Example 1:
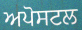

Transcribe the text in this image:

ਅਪੋਸਟਲ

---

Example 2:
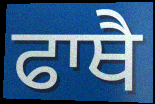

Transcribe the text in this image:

ਫਾਥੈ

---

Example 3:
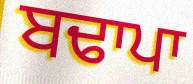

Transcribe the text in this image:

ਬਢਾਪਾ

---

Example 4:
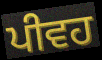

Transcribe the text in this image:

ਪੀਵਹ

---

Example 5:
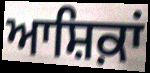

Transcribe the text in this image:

ਆਸ਼ਿਕ਼ਾਂ